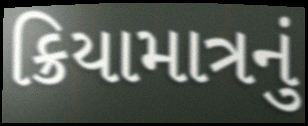
ક્રિયામાત્રનું